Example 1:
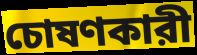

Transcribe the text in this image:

চোষণকারী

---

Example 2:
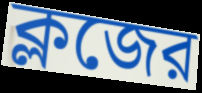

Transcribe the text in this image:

ক্লজের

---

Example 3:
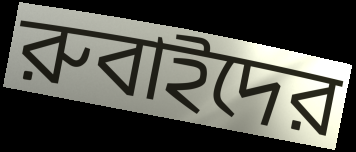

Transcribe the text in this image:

রুবাইদের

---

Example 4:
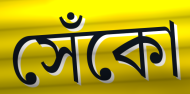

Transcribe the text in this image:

সেঁকো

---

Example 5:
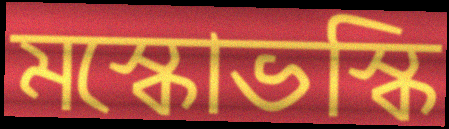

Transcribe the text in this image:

মস্কোভস্কি